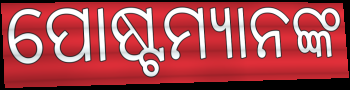
ପୋଷ୍ଟମ୍ୟାନଙ୍କ